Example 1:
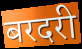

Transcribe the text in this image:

बरदरी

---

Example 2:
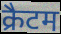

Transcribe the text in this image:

क्रैटम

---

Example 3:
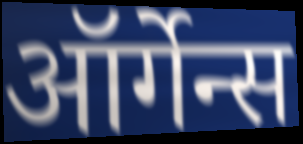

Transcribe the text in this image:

ऑर्गेन्स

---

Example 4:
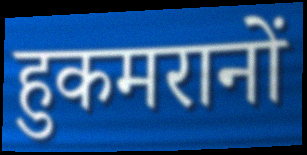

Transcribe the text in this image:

हुकमरानों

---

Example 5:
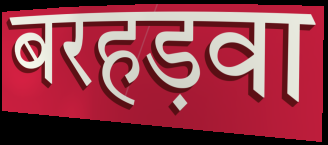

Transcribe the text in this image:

बरहड़वा